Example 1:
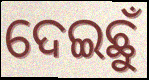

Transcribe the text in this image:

ଦେଇଛୁଁ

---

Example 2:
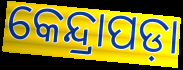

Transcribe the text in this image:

କେନ୍ଦ୍ରାପଡ଼ା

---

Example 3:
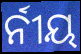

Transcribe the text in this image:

ର୍ନୀୟ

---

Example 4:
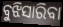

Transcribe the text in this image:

ବୁଝିସାରିବା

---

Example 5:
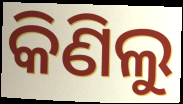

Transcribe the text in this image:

କିଣିଲୁ